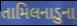
તામિલનાડુના